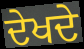
ਦੇਖਦੇ